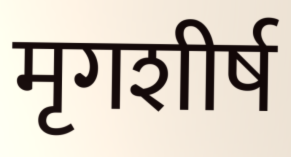
मृगशीर्ष